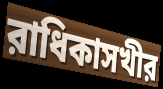
রাধিকাসখীর